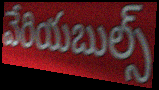
వేరియబుల్స్